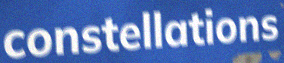
constellations